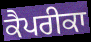
ਕੈਪਰੀਕਾ